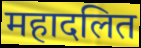
महादलित